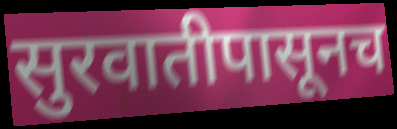
सुरवातीपासूनच